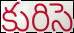
కురిసె